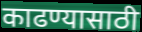
काढण्यासाठी